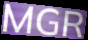
MGR